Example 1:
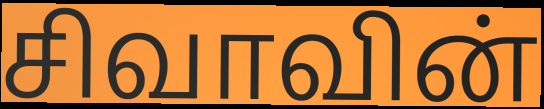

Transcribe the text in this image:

சிவாவின்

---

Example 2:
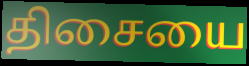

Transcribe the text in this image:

திசையை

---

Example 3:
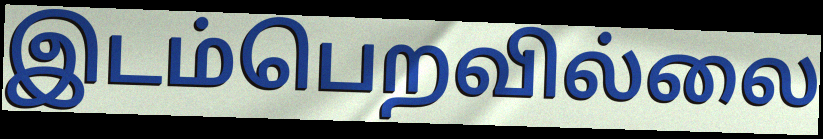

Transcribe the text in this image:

இடம்பெறவில்லை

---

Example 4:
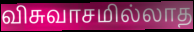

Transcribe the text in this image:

விசுவாசமில்லாத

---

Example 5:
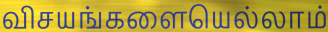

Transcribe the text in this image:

விசயங்களையெல்லாம்